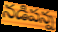
నడిపన్న